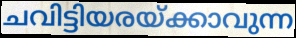
ചവിട്ടിയരയ്ക്കാവുന്ന